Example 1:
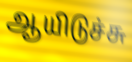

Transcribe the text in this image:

ஆயிடுச்சு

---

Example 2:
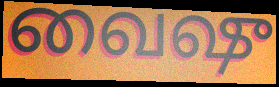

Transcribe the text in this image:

வைஷு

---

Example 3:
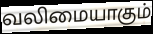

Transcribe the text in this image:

வலிமையாகும்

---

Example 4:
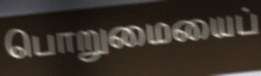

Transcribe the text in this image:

பொறுமையைப்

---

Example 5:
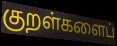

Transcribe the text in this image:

குறள்களைப்